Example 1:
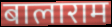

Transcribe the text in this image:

बालाराम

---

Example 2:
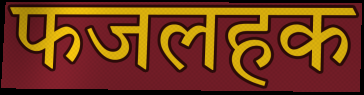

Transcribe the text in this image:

फजलहक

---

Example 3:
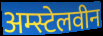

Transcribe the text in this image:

अम्स्टेलवीन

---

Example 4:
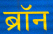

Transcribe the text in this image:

ब्रॉन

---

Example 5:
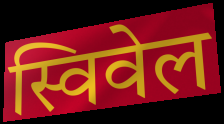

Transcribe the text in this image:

स्विवेल